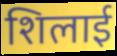
शिलाई